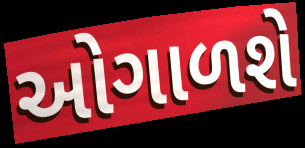
ઓગાળશે